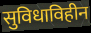
सुविधाविहीन